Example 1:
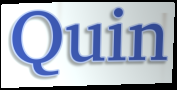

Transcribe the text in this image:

Quin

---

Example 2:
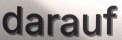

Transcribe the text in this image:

darauf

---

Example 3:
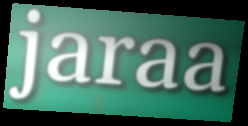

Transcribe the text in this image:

jaraa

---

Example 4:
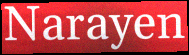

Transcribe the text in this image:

Narayen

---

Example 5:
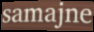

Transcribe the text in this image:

samajne